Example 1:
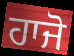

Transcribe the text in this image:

ਹਾਜੋ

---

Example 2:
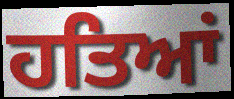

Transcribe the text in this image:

ਹਤਿਆਂ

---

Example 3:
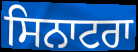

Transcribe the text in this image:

ਸਿਨਾਟਰਾ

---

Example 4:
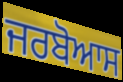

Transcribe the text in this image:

ਜਰਬੋਆਸ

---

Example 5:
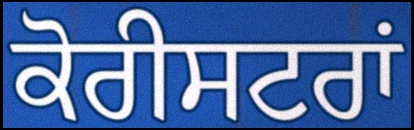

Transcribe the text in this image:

ਕੋਰੀਸਟਰਾਂ